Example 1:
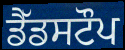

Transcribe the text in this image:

ਡੈੱਡਸਟੌਪ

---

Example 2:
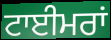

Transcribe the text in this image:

ਟਾਈਮਰਾਂ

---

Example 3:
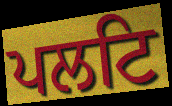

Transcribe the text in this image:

ਪਲਟਿ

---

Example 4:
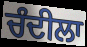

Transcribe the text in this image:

ਚੰਦੀਲਾ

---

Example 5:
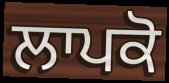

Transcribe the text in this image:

ਲਾਪਕੋ